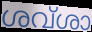
ശവ്ശാ